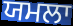
ਯਮਲਾ